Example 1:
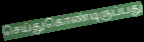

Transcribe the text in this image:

செய்துகொண்டிருப்பது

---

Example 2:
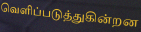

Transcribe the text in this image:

வெளிப்படுத்துகின்றன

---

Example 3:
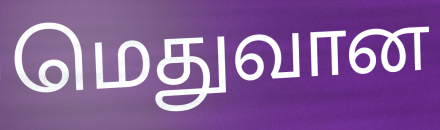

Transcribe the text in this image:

மெதுவான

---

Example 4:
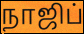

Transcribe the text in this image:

நாஜிப்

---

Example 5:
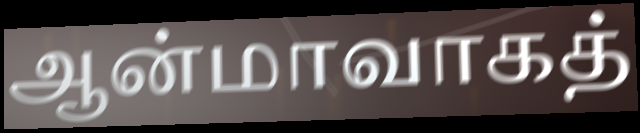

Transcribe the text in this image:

ஆன்மாவாகத்